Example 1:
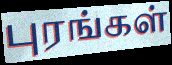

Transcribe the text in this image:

புரங்கள்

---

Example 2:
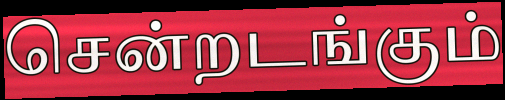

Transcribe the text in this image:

சென்றடங்கும்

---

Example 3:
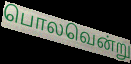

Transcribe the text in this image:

பொலவென்று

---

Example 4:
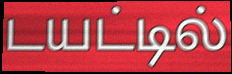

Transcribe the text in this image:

டயட்டில்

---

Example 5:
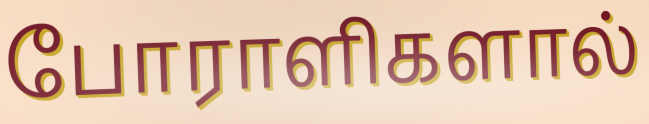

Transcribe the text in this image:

போராளிகளால்